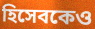
হিসেবকেও